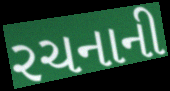
રચનાની